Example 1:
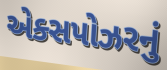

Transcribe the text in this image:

એક્સપોઝરનું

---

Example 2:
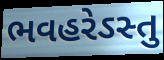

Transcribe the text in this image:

ભવહરેઽસ્તુ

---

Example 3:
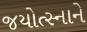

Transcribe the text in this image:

જયોત્સ્નાને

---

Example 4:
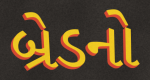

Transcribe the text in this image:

બ્રેડનો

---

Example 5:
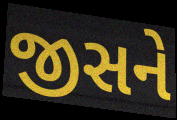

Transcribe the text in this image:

જીસને